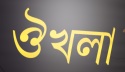
ঔখলা